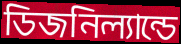
ডিজনিল্যান্ডে